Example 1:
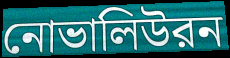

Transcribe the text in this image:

নোভালিউরন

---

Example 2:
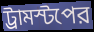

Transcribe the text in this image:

ট্রামস্টপের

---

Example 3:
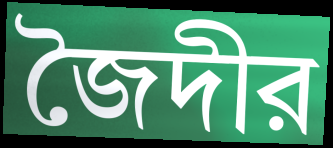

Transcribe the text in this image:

জৈদীর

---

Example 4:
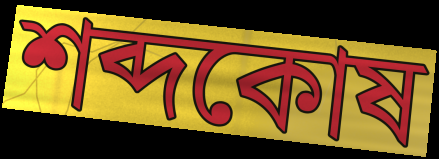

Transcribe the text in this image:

শব্দকোষ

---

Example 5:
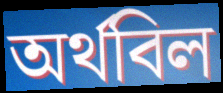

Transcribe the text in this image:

অর্থবিল